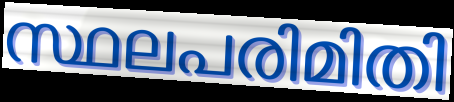
സ്ഥലപരിമിതി